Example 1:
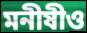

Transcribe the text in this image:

মনীষীও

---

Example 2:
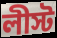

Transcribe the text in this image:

লীস্ট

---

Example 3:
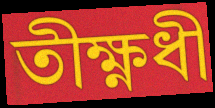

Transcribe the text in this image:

তীক্ষ্ণধী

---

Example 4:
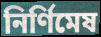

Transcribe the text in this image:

নির্ণিমেষ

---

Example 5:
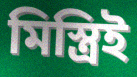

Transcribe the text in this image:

মিস্ত্রিই